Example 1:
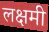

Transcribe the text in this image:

लक्षमी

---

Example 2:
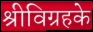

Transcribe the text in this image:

श्रीविग्रहके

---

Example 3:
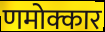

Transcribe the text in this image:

णमोक्कार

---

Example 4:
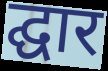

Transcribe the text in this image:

द्घार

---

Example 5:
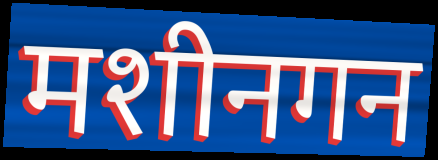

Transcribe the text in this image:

मशीनगन